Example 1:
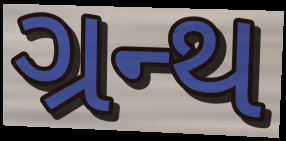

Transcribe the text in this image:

ગ્રન્થ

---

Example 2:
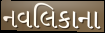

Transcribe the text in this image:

નવલિકાના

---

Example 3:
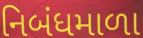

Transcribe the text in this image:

નિબંધમાળા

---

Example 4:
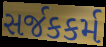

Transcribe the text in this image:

સર્જકકર્મ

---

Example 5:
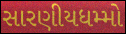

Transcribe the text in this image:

સારણીયધમ્મો